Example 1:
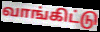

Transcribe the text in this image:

வாங்கிட்டு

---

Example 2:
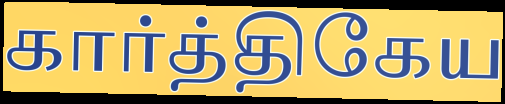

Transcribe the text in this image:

கார்த்திகேய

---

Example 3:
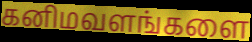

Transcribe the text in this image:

கனிமவளங்களை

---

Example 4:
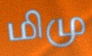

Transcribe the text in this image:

மிமு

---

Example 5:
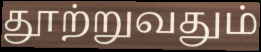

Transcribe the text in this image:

தூற்றுவதும்